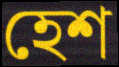
হেশ